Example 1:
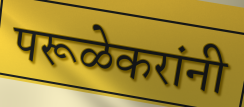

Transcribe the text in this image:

परूळेकरांनी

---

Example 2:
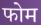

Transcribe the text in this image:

फोम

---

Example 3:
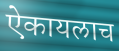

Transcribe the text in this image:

ऐकायलाच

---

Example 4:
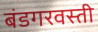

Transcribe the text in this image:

बंडगरवस्ती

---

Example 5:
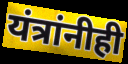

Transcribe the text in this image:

यंत्रांनीही